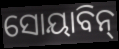
ସୋୟାବିନ୍